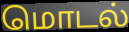
மொடல்